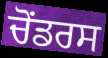
ਚੋਂਡਰਸ